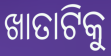
ଖାତାଟିକୁ